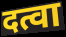
दत्वा